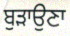
ਬੁੜਾਉਣਾ